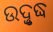
ଉଦ୍ବୃଦ୍ଧ